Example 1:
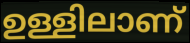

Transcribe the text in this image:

ഉള്ളിലാണ്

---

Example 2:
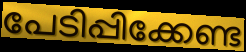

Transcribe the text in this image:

പേടിപ്പിക്കേണ്ട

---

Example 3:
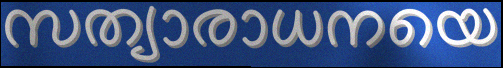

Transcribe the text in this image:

സത്യാരാധനയെ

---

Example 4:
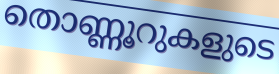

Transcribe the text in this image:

തൊണ്ണൂറുകളുടെ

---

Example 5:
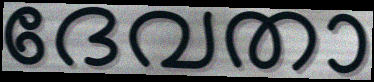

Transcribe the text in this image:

ദേവതാ